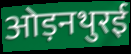
ओड़नथुरई